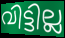
വിട്ടില്ല